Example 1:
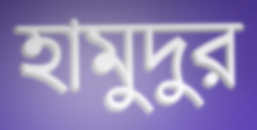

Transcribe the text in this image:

হামুদুর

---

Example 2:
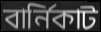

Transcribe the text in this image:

বার্নিকাট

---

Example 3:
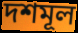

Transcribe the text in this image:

দশমূল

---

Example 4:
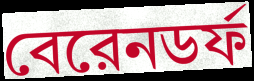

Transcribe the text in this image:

বেরেনডর্ফ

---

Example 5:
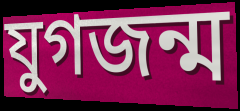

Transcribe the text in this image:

যুগজন্ম